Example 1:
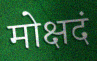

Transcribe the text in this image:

मोक्षदं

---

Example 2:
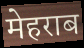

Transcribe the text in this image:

मेहराब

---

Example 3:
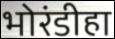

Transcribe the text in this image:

भोरंडीहा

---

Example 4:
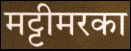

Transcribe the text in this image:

मट्टीमरका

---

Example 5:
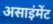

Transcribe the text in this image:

असाइंमेंट